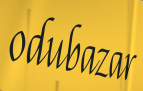
odubazar